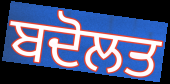
ਬਦੋਲਤ